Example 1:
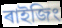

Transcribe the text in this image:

ৰাইজিং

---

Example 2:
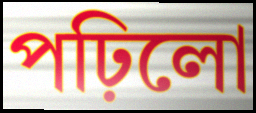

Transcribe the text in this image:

পঢ়িলো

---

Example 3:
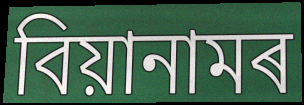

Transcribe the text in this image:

বিয়ানামৰ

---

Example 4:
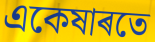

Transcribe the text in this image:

একেষাৰতে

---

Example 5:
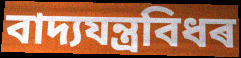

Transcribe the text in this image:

বাদ্যযন্ত্ৰবিধৰ